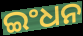
ଇଂଧନ